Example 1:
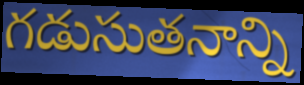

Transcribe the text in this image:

గడుసుతనాన్ని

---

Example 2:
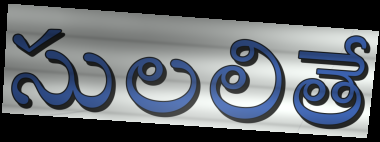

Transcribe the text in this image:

సులలితే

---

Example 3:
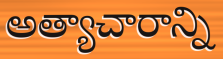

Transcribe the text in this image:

అత్యాచారాన్ని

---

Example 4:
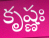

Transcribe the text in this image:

కృష్ణః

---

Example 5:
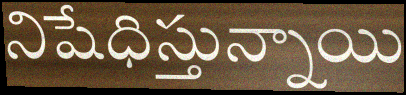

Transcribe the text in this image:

నిషేధిస్తున్నాయి